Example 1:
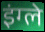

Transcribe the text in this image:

इंग्ले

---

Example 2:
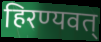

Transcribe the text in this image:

हिरण्यवत्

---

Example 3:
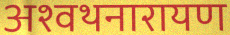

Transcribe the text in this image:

अश्वथनारायण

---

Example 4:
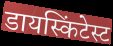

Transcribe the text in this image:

डायस्किंटेस्ट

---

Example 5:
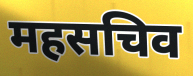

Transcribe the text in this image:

महसचिव